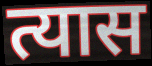
त्यास